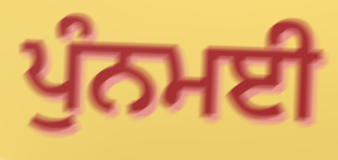
ਪੁੰਨਮਈ